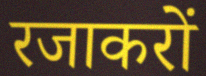
रजाकरों